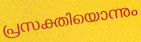
പ്രസക്തിയൊന്നും